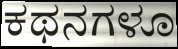
ಕಥನಗಳೂ